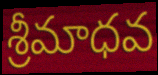
శ్రీమాధవ